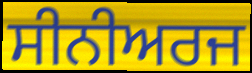
ਸੀਨੀਅਰਜ